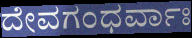
ದೇವಗಂಧರ್ವಾಃ